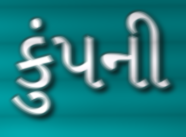
કુંપની